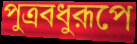
পুত্রবধুরূপে